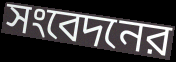
সংবেদনের